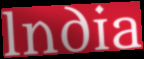
lndia